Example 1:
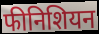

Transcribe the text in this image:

फीनिशियन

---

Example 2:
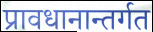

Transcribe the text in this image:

प्रावधानान्तर्गत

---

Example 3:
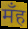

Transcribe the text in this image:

मँह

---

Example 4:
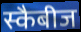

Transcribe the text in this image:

स्कैबीज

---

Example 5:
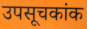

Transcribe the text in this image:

उपसूचकांक